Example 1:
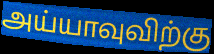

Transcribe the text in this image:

அய்யாவுவிற்கு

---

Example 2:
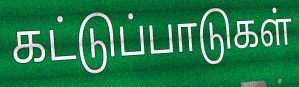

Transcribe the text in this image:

கட்டுப்பாடுகள்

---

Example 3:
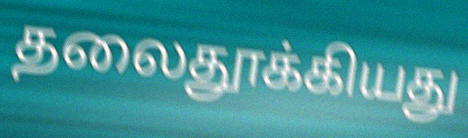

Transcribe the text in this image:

தலைதூக்கியது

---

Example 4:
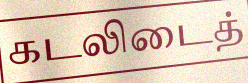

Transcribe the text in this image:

கடலிடைத்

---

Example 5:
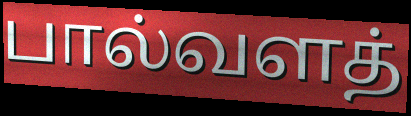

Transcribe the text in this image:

பால்வளத்